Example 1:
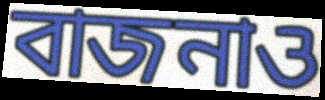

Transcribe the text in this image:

বাজনাও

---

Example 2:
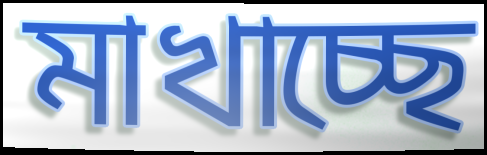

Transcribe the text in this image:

মাখাচ্ছে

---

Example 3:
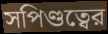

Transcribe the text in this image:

সপিণ্ডত্বের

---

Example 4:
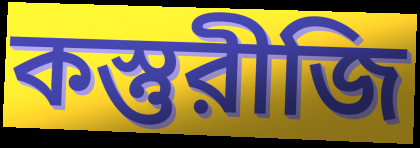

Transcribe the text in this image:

কস্তুরীজি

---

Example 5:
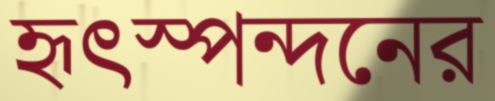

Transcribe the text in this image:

হৃৎস্পন্দনের